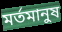
মর্তমানুষ